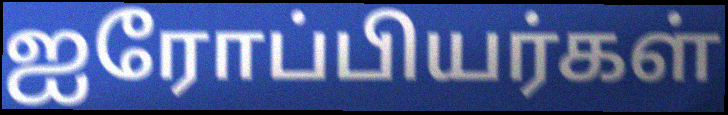
ஐரோப்பியர்கள்